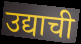
उद्याची